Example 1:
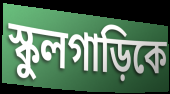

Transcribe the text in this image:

স্কুলগাড়িকে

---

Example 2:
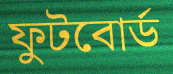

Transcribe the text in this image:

ফুটবোর্ড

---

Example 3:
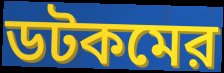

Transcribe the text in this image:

ডটকমের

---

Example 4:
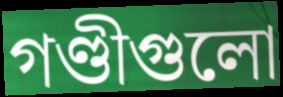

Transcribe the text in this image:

গণ্ডীগুলো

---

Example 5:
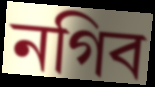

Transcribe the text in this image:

নগিব